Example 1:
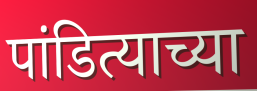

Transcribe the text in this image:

पांडित्याच्या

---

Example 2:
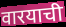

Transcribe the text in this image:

वारयाची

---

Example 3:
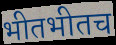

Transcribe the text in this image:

भीतभीतच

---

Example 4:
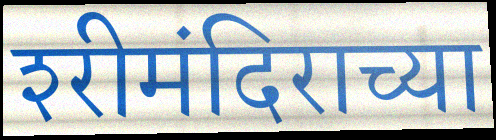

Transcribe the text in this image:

श्रीमंदिराच्या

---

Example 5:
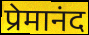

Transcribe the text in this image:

प्रेमानंद